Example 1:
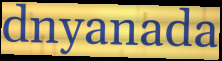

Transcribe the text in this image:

dnyanada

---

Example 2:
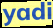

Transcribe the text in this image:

yadi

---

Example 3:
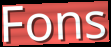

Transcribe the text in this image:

Fons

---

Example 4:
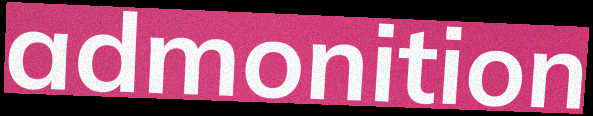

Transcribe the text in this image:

admonition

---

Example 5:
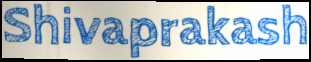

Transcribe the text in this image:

Shivaprakash